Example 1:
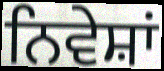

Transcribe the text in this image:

ਨਿਵੇਸ਼ਾਂ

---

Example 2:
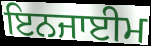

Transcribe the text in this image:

ਇਨਜਾਈਮ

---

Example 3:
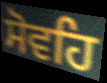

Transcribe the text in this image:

ਸੋਵਹਿ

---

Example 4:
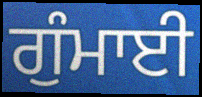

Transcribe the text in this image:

ਗੁੰਮਾਈ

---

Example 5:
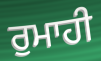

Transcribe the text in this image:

ਰੁਮਾਹੀ